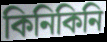
কিনিকিনি